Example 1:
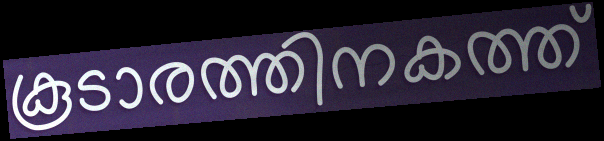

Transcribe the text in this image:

കൂടാരത്തിനകത്ത്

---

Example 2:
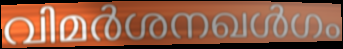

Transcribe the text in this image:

വിമർശനഖൾഗം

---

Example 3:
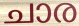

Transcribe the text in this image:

ചാര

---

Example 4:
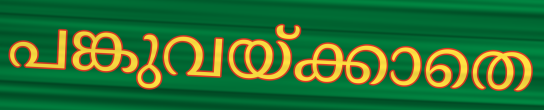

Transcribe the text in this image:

പങ്കുവയ്ക്കാതെ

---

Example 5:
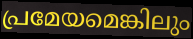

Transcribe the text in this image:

പ്രമേയമെങ്കിലും